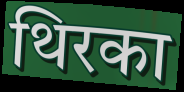
थिरका